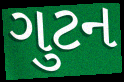
ગુટન